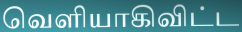
வெளியாகிவிட்ட